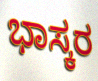
ಭಾಸ್ಕರ